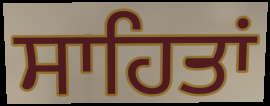
ਸਾਹਿਤਾਂ